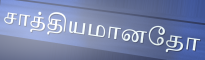
சாத்தியமானதோ